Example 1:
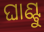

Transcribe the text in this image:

ଘାଣ୍ଟୁ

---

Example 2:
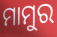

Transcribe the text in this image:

ମାମୁର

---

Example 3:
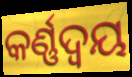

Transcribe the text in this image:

କର୍ଣ୍ଣଦ୍ୱୟ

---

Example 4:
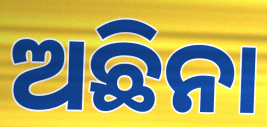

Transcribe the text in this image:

ଅଛିନା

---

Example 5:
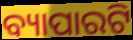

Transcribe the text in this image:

ବ୍ୟାପାରଟି